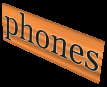
phones